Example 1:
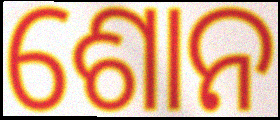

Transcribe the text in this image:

ଶୋନ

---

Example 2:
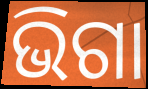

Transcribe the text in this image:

ଭିଗା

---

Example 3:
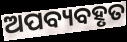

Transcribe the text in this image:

ଅପବ୍ୟବହୃତ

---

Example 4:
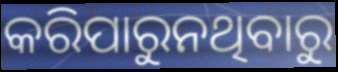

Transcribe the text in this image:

କରିପାରୁନଥିବାରୁ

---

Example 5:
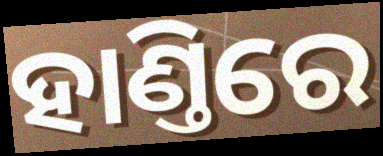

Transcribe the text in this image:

ହାଣ୍ତିରେ